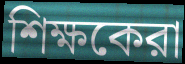
শিক্ষকেরা